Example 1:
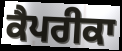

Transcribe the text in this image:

ਕੈਪਰੀਕਾ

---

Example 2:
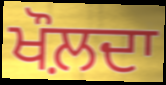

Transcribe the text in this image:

ਖੌਲ਼ਦਾ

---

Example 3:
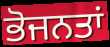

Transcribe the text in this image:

ਭੋਜਨਤਾਂ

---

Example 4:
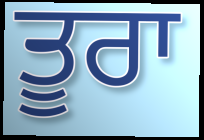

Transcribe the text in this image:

ਤੂਰਾ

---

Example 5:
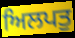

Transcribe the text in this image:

ਅਿਲਪਤੁ